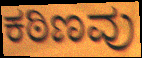
ಕಠಿಣವು